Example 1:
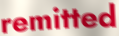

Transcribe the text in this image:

remitted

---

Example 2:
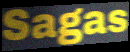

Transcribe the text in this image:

Sagas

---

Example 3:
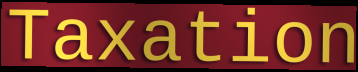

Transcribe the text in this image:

Taxation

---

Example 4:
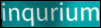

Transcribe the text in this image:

inqurium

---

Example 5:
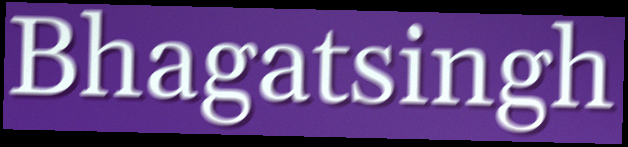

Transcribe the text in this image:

Bhagatsingh